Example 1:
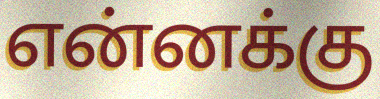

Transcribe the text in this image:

என்னக்கு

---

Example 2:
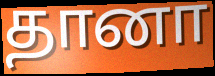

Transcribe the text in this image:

தானா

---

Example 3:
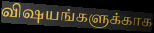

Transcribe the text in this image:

விஷயங்களுக்காக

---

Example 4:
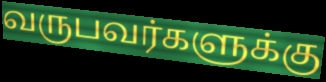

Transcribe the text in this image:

வருபவர்களுக்கு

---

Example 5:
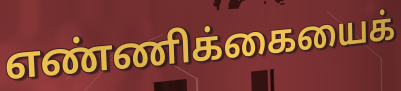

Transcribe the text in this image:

எண்ணிக்கையைக்